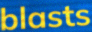
blasts